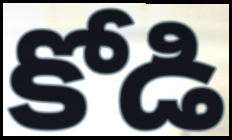
కోడి